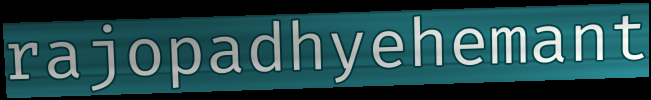
rajopadhyehemant